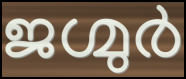
ജഗ്മുർ